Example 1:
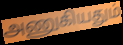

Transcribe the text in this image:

அணுகியதும்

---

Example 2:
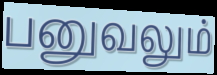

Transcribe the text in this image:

பனுவலும்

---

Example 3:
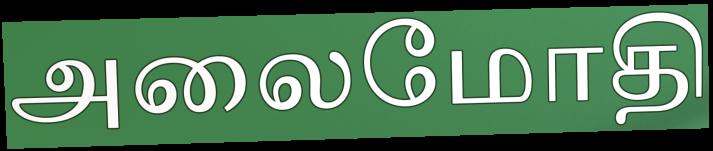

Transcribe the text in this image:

அலைமோதி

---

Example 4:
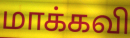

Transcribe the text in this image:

மாக்கவி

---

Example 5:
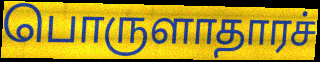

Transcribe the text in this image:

பொருளாதாரச்